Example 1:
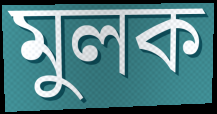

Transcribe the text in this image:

মুলক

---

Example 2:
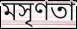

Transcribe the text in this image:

মসৃণতা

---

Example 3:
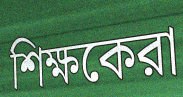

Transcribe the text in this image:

শিক্ষকেরা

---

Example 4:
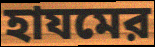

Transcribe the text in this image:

হাযমের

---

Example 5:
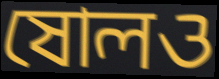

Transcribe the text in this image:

ষোলও